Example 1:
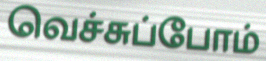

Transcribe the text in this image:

வெச்சுப்போம்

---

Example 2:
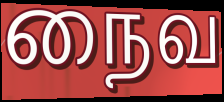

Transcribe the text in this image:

நைவ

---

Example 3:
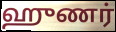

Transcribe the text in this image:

ஹுணர்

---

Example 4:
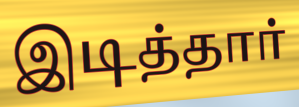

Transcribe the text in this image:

இடித்தார்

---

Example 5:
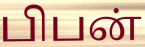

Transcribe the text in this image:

பிபன்